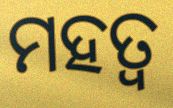
ମହତ୍ବ